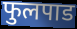
फुलपाड